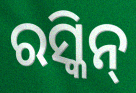
ରସ୍କିନ୍